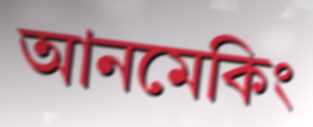
আনমেকিং